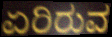
ಏರಿರುವ